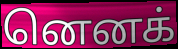
னெனக்